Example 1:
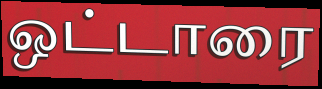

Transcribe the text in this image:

ஒட்டாரை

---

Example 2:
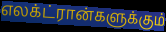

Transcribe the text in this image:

எலக்ட்ரான்களுக்கும்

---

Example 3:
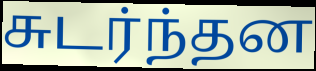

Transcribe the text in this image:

சுடர்ந்தன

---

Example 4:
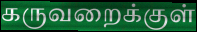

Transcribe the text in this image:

கருவறைக்குள்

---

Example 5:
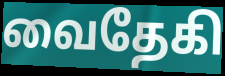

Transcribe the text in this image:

வைதேகி